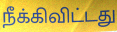
நீக்கிவிட்டது